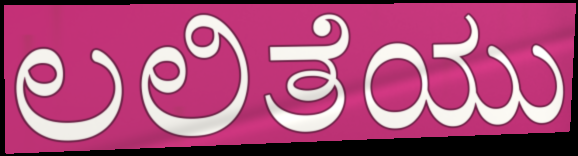
ಲಲಿತೆಯು